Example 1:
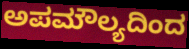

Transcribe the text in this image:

ಅಪಮೌಲ್ಯದಿಂದ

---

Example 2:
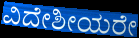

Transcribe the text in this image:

ವಿದೇಶೀಯರೇ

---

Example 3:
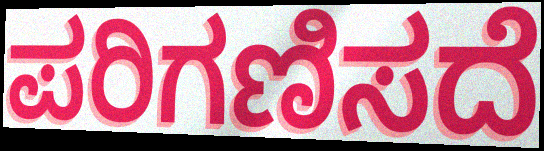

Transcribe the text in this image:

ಪರಿಗಣಿಸದೆ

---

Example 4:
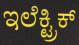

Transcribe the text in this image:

ಇಲೆಕ್ಟ್ರಿಕ್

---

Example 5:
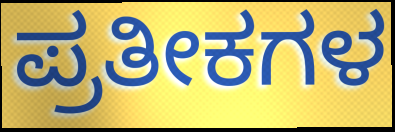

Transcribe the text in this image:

ಪ್ರತೀಕಗಳ